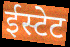
ईस्टेट